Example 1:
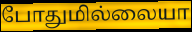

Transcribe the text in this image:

போதுமில்லையா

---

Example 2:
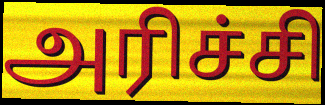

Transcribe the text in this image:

அரிச்சி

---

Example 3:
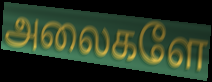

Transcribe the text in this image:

அலைகளே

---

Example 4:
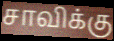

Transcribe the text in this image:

சாவிக்கு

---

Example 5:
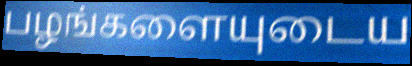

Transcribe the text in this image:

பழங்களையுடைய